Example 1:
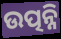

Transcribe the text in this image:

ଉତ୍ପନ୍ନି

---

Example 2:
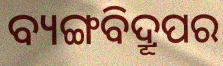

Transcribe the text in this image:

ବ୍ୟଙ୍ଗବିଦ୍ରୂପର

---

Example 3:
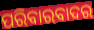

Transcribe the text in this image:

ପରିବାରବାଦର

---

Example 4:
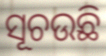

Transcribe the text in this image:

ସୂଚଉଛି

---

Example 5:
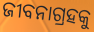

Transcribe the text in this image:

ଜୀବନାଗ୍ରହକୁ